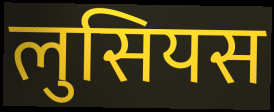
लुसियस